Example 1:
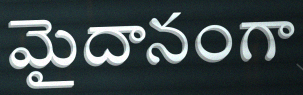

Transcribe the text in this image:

మైదానంగా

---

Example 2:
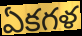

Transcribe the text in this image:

ఏకగళ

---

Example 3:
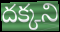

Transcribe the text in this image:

దక్కని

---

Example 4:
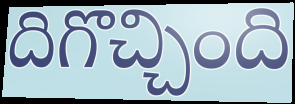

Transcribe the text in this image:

దిగొచ్చింది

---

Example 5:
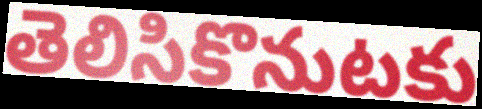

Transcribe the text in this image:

తెలిసికొనుటకు